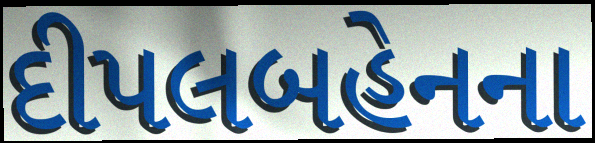
દીપલબહેનના